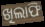
ଖିଲାଫି